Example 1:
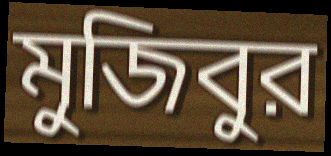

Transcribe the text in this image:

মুজিবুর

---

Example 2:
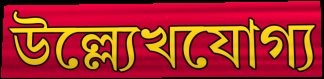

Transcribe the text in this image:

উল্ল্যেখযোগ্য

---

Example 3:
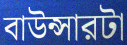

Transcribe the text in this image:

বাউন্সারটা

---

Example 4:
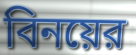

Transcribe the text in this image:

বিনয়ের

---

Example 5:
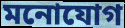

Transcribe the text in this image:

মনোযোগ